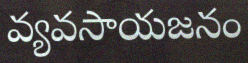
వ్యవసాయజనం